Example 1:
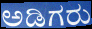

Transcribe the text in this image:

ಅಡಿಗರು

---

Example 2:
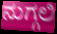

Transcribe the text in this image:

ನುಗ್ಗಲಿ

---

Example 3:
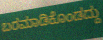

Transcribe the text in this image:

ಬರಮಾಡಿಕೊಂಡದ್ದು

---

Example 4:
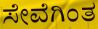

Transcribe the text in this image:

ಸೇವೆಗಿಂತ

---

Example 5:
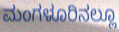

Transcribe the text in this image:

ಮಂಗಳೂರಿನಲ್ಲೂ